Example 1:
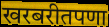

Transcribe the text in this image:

खरबरीतपणा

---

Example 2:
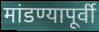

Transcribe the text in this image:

मांडण्यापूर्वी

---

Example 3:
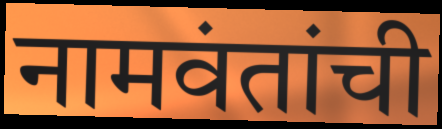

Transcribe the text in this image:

नामवंतांची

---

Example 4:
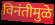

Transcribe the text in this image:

विनंतीमुळे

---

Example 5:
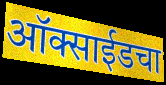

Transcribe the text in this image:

ऑक्साईडचा